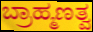
ಬ್ರಾಹ್ಮಣತ್ವ